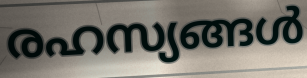
രഹസ്യങ്ങൾ